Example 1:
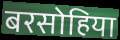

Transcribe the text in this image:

बरसोहिया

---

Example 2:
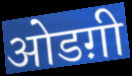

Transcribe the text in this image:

ओडग़ी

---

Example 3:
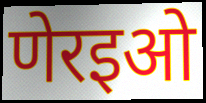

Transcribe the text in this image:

णेरइओ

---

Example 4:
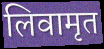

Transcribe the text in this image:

लिवामृत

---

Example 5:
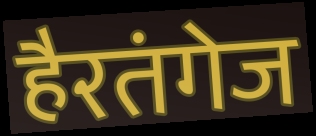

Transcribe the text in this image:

हैरतंगेज